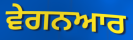
ਵੇਗਨਆਰ